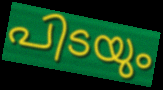
പിടയും